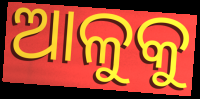
ଆଳୁକୁ